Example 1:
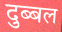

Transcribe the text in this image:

दुब्बल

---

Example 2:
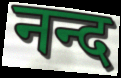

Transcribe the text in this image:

नन्द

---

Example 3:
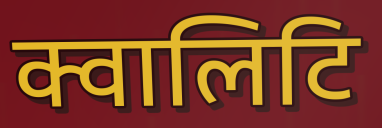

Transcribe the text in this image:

क्वालिटि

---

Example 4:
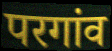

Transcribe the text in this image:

परगांव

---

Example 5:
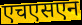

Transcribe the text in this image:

एचएसएन